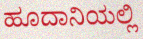
ಹೂದಾನಿಯಲ್ಲಿ